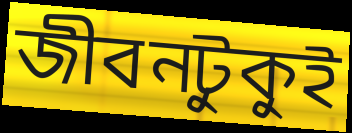
জীবনটুকুই